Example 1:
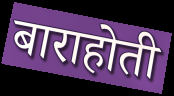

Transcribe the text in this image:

बाराहोती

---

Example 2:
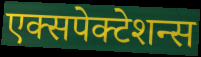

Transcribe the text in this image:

एक्सपेक्टेशन्स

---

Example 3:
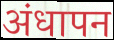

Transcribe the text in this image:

अंधापन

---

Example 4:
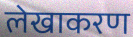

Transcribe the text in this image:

लेखाकरण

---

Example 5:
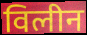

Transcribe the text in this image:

विलीन